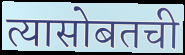
त्यासोबतची